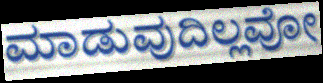
ಮಾಡುವುದಿಲ್ಲವೋ